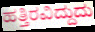
ಹತ್ತಿರವಿದ್ದುದು